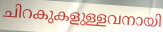
ചിറകുകളുള്ളവനായി